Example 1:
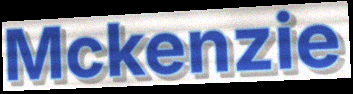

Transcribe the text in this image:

Mckenzie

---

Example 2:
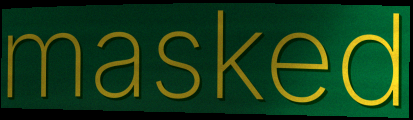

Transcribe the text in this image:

masked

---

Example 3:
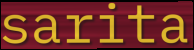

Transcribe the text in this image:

sarita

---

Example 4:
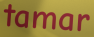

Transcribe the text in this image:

tamar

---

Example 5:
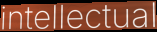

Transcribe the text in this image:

intellectual